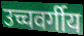
उच्चवर्गीय